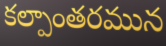
కల్పాంతరమున